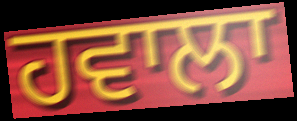
ਹਵਾਲਾ